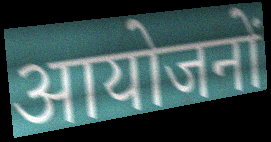
आयोजनों